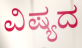
ವಿಷ್ಯದ